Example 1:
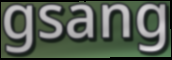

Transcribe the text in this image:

gsang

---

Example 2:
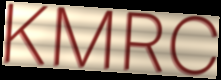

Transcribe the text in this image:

KMRC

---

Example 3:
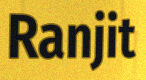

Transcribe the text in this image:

Ranjit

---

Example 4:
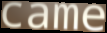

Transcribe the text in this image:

came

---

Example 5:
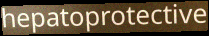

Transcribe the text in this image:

hepatoprotective